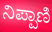
ನಿಪ್ಪಾಣಿ